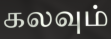
கலவும்